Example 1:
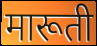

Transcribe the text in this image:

मारूती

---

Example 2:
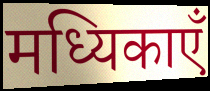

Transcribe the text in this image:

मध्यिकाएँ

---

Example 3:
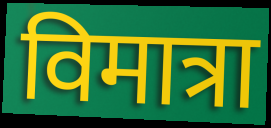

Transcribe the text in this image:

विमात्रा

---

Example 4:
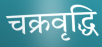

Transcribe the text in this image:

चक्रवृद्धि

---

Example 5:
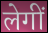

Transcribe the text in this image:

लेगीं